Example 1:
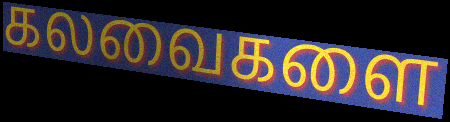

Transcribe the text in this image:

கலவைகளை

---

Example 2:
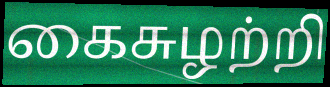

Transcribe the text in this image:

கைசுழற்றி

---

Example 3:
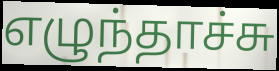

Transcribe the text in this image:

எழுந்தாச்சு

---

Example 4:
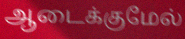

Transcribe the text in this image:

ஆடைக்குமேல்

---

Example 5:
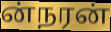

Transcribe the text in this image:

ன்நரன்